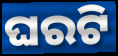
ଘରଟି